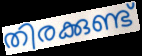
തിരക്കുണ്ട്